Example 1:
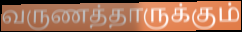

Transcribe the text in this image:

வருணத்தாருக்கும்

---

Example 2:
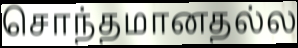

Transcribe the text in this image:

சொந்தமானதல்ல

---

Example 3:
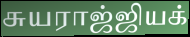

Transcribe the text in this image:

சுயராஜ்ஜியக்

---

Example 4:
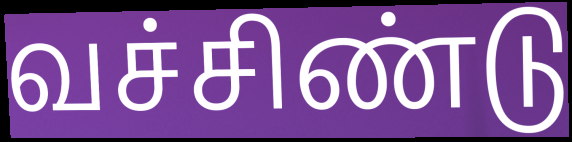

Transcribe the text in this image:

வச்சிண்டு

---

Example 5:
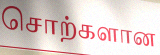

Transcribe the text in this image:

சொற்களான